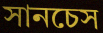
সানচেস